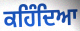
ਕਹਿੰਦਿਆ